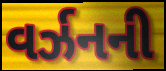
વર્ઝનની